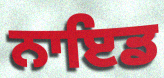
ਨਾਇਡ